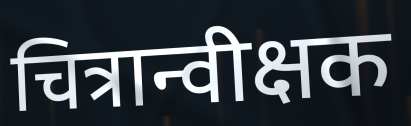
चित्रान्वीक्षक